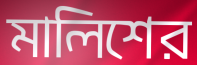
মালিশের